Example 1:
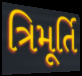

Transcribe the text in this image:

ત્રિમૂર્તિ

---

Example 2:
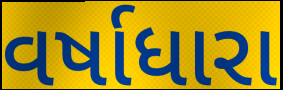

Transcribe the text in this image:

વર્ષાધારા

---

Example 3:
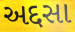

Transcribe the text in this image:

અદ્દસા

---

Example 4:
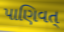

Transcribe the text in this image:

પાણિવત્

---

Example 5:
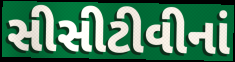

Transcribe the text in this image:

સીસીટીવીનાં